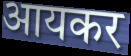
आयकर